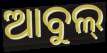
ଆବୁଲ୍